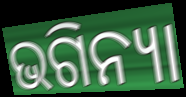
ଭଗିନ୍ୟା